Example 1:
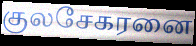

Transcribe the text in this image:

குலசேகரனை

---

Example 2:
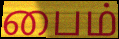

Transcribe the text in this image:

பைம்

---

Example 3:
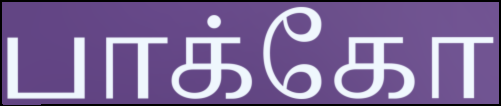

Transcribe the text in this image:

பாக்கோ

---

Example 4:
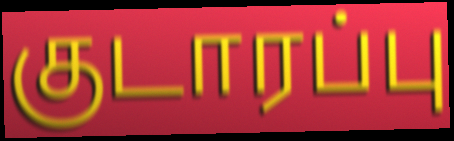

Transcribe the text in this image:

குடாரப்பு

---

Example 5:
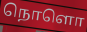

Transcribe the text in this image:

நொளொ